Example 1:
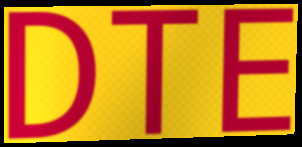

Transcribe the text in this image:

DTE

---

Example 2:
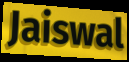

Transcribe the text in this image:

Jaiswal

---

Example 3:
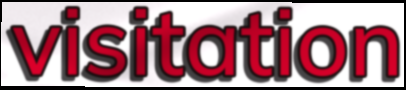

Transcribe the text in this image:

visitation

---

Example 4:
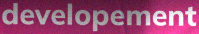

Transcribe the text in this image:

developement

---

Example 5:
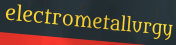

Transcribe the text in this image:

electrometallurgy